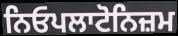
ਨਿਓਪਲਾਟੋਨਿਜ਼ਮ